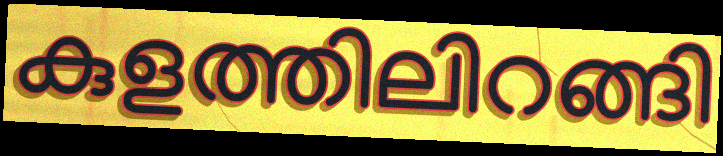
കുളത്തിലിറങ്ങി